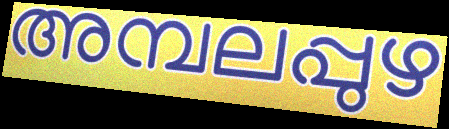
അമ്പലപ്പുഴ